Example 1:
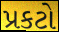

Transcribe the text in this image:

પ્રકટો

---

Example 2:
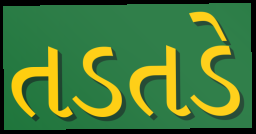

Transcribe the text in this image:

તડતડે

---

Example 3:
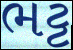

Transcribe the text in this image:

ભટ્ટ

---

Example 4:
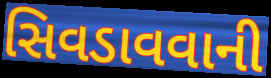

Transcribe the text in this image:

સિવડાવવાની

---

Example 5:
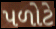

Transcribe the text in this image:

પળોટે